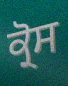
ਕ੍ਰੋਸ